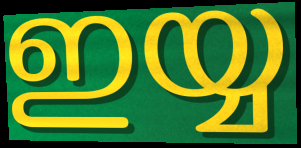
ഇയ്യ